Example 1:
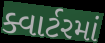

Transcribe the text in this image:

ક્વાર્ટરમાં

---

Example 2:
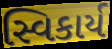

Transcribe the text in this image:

સ્વિકાર્ય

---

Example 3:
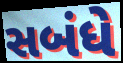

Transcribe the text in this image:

સબંધે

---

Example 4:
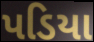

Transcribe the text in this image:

પડિયા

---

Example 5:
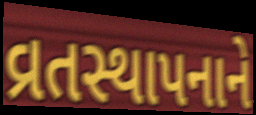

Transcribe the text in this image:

વ્રતસ્થાપનાને